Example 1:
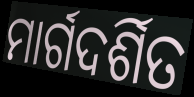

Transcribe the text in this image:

ମାର୍ଗଦର୍ଶିତ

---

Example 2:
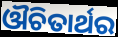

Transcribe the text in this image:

ଔଚିତାର୍ଥର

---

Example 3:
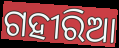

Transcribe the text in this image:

ଗହୀରିଆ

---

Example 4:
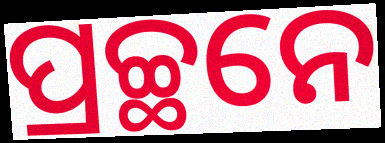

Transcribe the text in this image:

ପ୍ରଚ୍ଛନେ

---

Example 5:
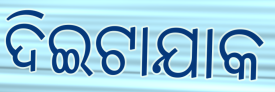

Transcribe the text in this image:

ଦିଇଟାଯାକ